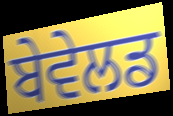
ਬੇਵੇਲਡ